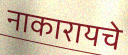
नाकारायचे